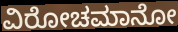
ವಿರೋಚಮಾನೋ